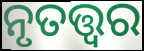
ନୃତତ୍ତ୍ଵର